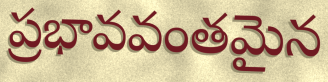
ప్రభావవంతమైన